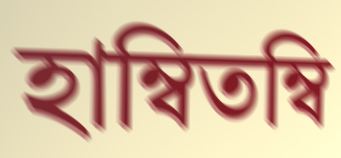
হাম্বিতম্বি